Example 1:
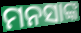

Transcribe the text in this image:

ମନସାଙ୍କ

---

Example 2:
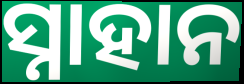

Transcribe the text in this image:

ସ୍ନାହାନ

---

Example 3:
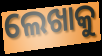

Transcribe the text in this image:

ଲେଖାକୁ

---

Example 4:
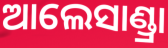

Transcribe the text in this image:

ଆଲେସାଣ୍ଡ୍ରା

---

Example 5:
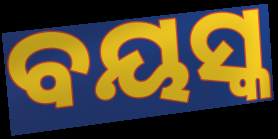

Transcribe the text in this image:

ବୟସ୍କ